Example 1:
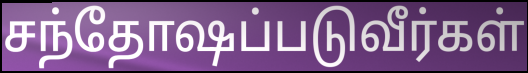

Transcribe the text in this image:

சந்தோஷப்படுவீர்கள்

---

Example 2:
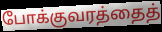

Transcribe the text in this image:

போக்குவரத்தைத்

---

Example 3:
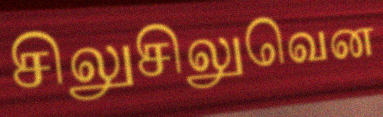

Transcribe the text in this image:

சிலுசிலுவென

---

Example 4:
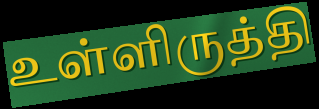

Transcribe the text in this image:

உள்ளிருத்தி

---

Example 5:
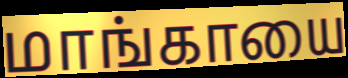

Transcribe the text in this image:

மாங்காயை